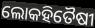
ଲୋକହିତୈଷୀ